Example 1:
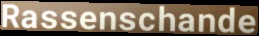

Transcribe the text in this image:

Rassenschande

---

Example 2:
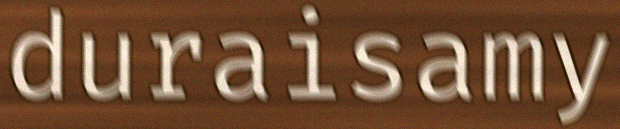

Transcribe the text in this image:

duraisamy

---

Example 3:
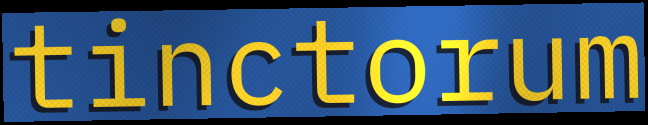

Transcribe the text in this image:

tinctorum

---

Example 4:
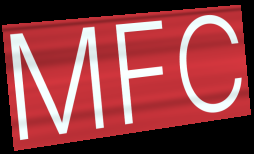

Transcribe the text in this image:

MFC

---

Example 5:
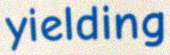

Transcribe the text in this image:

yielding